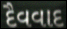
દૈવવાદ